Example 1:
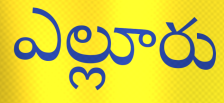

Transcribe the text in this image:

ఎల్లూరు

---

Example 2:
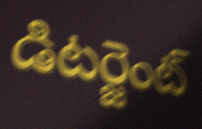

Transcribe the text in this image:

డిటర్జెంట్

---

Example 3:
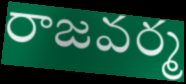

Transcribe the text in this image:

రాజవర్మ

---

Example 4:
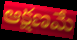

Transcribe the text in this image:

ఆక్షణమే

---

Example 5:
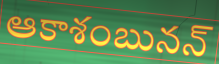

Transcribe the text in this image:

ఆకాశంబునన్